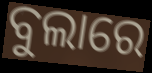
ବୁଲାରେ